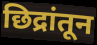
छिद्रांतून